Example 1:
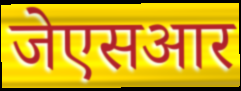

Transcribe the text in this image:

जेएसआर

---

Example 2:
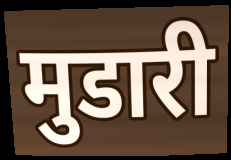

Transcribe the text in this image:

मुडारी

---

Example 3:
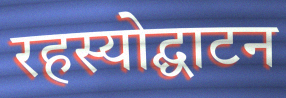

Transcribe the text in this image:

रहस्योद्घाटन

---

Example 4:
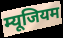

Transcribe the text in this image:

म्यूजियम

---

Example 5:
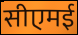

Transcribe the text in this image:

सीएमई